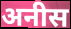
अनीस